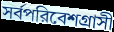
সর্বপরিবেশগ্রাসী